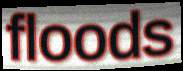
floods